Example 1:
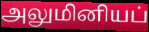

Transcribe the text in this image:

அலுமினியப்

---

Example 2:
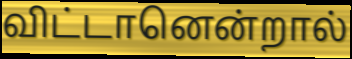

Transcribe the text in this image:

விட்டானென்றால்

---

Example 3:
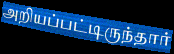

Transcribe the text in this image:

அறியப்பட்டிருந்தார்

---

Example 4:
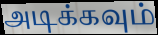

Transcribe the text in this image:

அடிக்கவும்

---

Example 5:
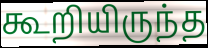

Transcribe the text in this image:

கூறியிருந்த